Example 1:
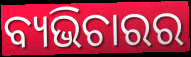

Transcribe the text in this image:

ବ୍ୟଭିଚାରର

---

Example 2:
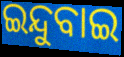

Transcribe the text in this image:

ଇନ୍ଦୁବାଇ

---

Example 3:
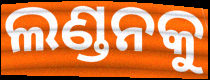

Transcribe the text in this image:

ଲଣ୍ଡନକୁ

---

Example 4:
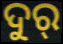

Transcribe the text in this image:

ଦୁର୍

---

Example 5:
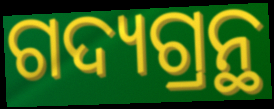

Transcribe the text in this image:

ଗଦ୍ୟଗ୍ରନ୍ଥ